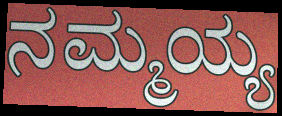
ನಮ್ಮಯ್ಯ